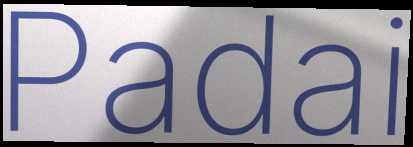
Padai